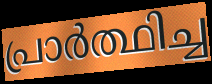
പ്രാർത്ഥിച്ച